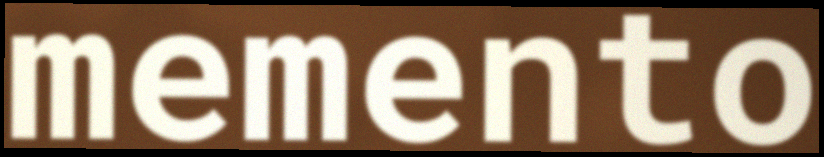
memento